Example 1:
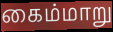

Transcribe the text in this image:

கைம்மாறு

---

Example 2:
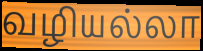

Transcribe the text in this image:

வழியல்லா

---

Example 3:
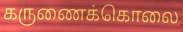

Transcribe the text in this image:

கருணைக்கொலை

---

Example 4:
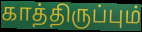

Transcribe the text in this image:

காத்திருப்பும்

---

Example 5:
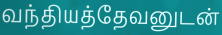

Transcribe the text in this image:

வந்தியத்தேவனுடன்